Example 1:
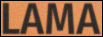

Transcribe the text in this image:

LAMA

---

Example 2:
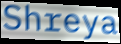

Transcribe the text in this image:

Shreya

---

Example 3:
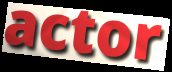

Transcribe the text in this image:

actor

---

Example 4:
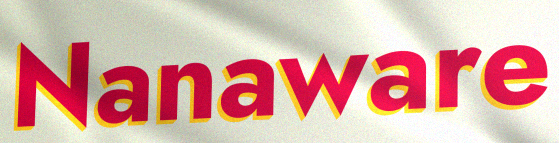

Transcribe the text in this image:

Nanaware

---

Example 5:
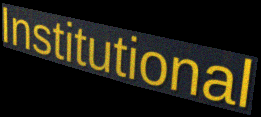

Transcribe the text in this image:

Institutional